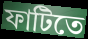
ফাটিতে